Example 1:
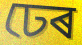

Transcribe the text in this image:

ঢেৰ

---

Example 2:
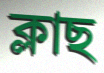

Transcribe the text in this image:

ক্লাছ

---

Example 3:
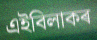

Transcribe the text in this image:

এইবিলাকৰ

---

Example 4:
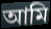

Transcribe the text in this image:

আমি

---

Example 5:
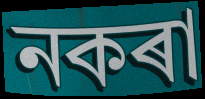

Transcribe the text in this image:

নকৰা